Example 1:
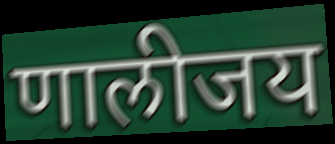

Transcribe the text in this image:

णालीजय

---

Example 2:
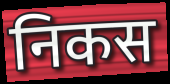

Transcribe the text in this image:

निकस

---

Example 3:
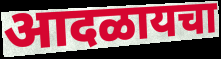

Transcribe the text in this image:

आदळायचा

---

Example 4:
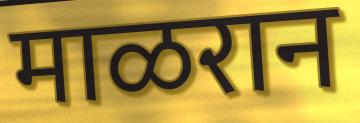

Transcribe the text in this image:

माळरान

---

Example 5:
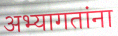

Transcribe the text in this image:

अभ्यागतांना